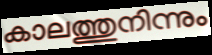
കാലത്തുനിന്നും